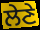
ਲੇਣੇ